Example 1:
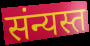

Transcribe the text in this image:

संन्यस्त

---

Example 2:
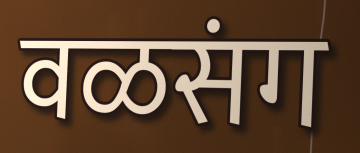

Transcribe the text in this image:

वळसंग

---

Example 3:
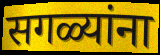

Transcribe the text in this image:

सगळ्यांना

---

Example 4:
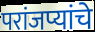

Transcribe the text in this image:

परांजप्यांचे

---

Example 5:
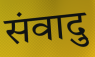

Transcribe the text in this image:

संवादु